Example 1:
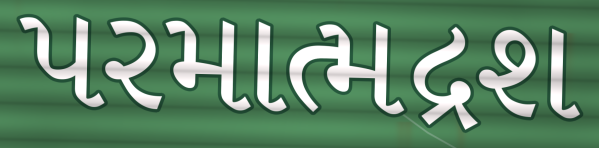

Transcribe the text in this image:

પરમાત્મદ્રશ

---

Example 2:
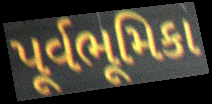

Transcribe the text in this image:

પૂર્વભૂમિકા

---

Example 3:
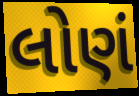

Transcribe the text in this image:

લોણં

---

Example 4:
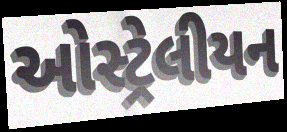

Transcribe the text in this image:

ઓસ્ટ્રેલીયન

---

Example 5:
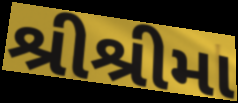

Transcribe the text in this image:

શ્રીશ્રીમા